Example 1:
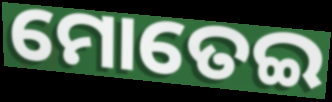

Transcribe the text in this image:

ମୋତେଇ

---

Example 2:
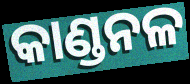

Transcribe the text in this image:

କାଣ୍ଡନଳ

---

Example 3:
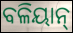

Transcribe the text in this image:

ବଳିୟାନ୍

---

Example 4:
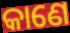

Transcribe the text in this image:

କାଣେ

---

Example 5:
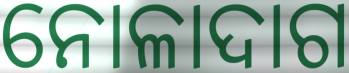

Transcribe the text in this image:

ନୋଳାଦାଗ